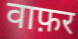
वाफ़र